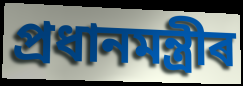
প্ৰধানমন্ত্ৰীৰ